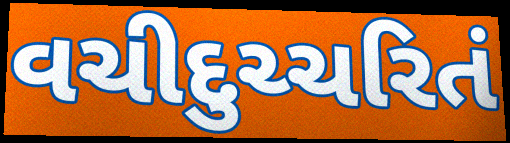
વચીદુચ્ચરિતં